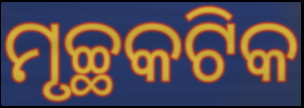
ମୃଚ୍ଛକଟିକ